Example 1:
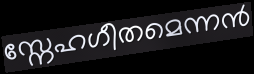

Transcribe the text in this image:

സ്നേഹഗീതമെന്നൻ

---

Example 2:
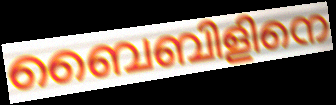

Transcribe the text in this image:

ബൈബിളിനെ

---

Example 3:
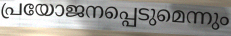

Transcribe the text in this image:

പ്രയോജനപ്പെടുമെന്നും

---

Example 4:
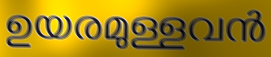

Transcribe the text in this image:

ഉയരമുള്ളവൻ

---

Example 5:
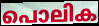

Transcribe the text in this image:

പൊലിക